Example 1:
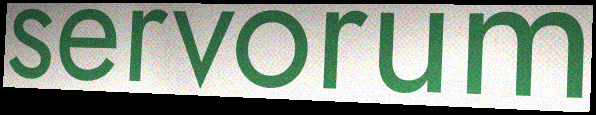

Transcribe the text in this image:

servorum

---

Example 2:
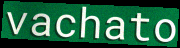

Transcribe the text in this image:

vachato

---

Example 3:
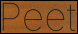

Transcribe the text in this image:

Peet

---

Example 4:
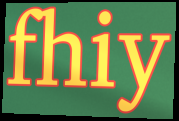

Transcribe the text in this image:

fhiy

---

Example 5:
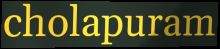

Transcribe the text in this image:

cholapuram